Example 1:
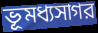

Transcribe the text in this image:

ভূমধ্যসাগর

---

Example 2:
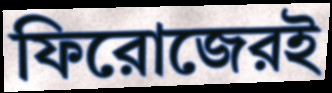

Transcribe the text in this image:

ফিরোজেরই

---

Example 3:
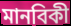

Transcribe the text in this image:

মানবিকী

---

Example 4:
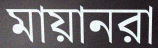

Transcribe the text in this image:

মায়ানরা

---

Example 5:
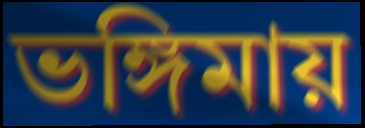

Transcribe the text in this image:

ভঙ্গিমায়